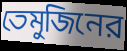
তেমুজিনের